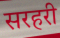
सरहरी